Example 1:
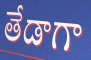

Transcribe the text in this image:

తేడాగా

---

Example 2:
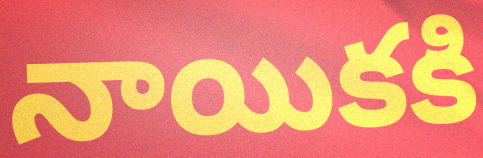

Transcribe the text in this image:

నాయికకి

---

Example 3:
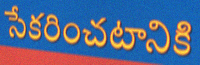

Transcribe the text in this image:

సేకరించటానికి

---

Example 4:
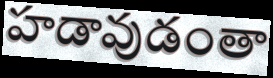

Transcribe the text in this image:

హడావుడంతా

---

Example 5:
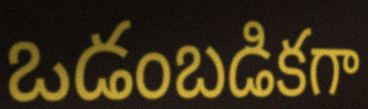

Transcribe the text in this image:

ఒడంబడికగా